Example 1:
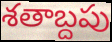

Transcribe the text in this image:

శతాబ్దపు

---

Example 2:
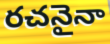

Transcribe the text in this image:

రచనైనా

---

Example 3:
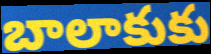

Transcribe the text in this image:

బాలాకుకు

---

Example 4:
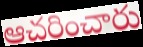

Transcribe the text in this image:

ఆచరించారు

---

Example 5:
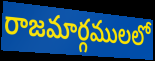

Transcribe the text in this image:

రాజమార్గములలో